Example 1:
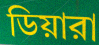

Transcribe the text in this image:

ডিয়ারা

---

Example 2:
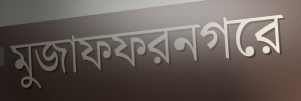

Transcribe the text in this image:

মুজাফফরনগরে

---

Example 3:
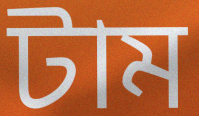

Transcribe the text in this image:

টাম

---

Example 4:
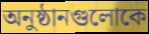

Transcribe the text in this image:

অনুষ্ঠানগুলোকে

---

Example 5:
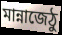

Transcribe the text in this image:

মান্নাজেঠু